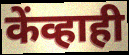
केंव्हाही